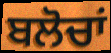
ਬਲੋਚਾਂ